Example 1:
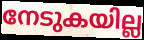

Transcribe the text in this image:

നേടുകയില്ല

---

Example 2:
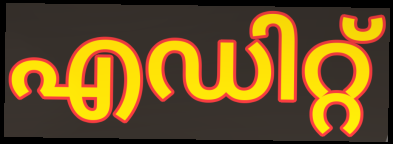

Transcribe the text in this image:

എഡിറ്റ്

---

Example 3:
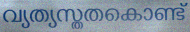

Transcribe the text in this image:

വ്യത്യസ്തതകൊണ്ട്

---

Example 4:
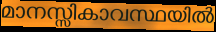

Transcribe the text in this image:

മാനസ്സികാവസ്ഥയിൽ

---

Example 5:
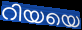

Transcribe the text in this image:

റിയയെ